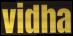
vidha